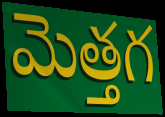
మెత్తగ